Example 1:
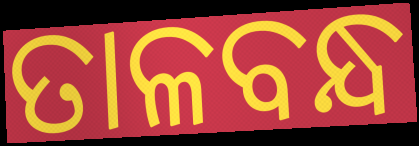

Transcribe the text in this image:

ତାଳବନ୍ଧ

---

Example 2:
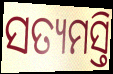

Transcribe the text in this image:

ସତ୍ୟମସ୍ତି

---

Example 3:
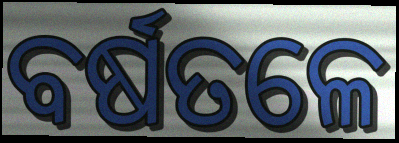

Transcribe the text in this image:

ବର୍ଷତଳେ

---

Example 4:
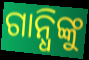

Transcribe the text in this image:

ଗାନ୍ଧିଙ୍କୁ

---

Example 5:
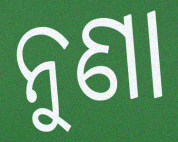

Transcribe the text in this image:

ନୁଣା